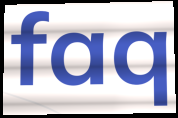
faq